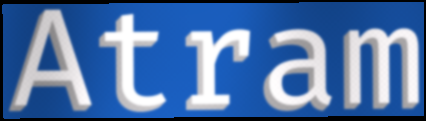
Atram